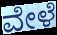
ವೇಳೆ